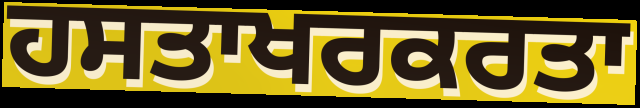
ਹਸਤਾਖਰਕਰਤਾ